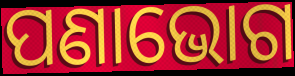
ପଣାଭୋଗ